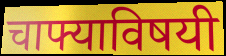
चाफ्याविषयी